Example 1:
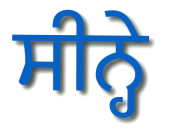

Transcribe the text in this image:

ਸੀਨ੍ਹੇ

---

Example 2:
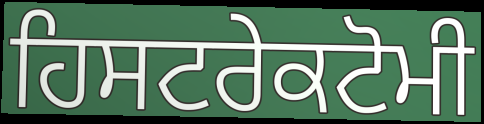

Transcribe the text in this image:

ਹਿਸਟਰੇਕਟੋਮੀ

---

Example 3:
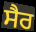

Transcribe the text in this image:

ਸੈਰ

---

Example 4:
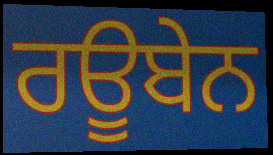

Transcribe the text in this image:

ਰਊਬੇਨ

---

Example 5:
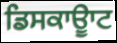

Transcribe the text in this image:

ਡਿਸਕਾਊਾਟ